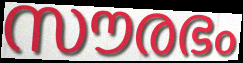
സൗരഭം